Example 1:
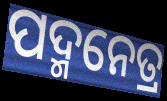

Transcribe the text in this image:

ପଦ୍ମନେତ୍ର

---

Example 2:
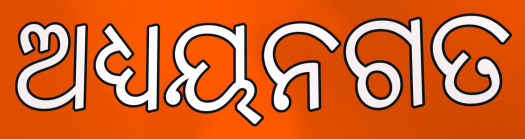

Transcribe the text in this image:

ଅଧ୍ୟୟନଗତ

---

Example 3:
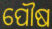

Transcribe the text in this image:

ପୌଷ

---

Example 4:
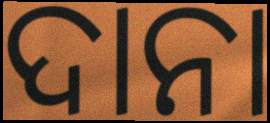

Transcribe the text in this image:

ଦାନା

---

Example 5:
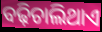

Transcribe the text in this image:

ବଢ଼ିଚାଲିଥାଏ